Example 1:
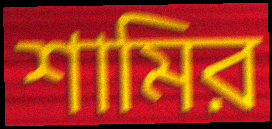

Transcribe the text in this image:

শামির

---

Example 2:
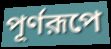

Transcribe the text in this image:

পূর্ণরূপে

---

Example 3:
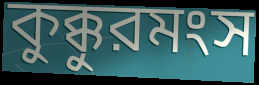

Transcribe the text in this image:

কুক্কুরমংস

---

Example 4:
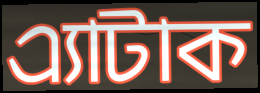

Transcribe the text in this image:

এ্যাটাক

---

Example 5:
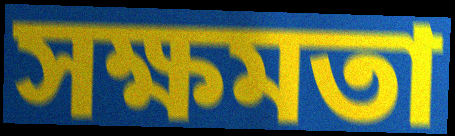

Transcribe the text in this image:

সক্ষমতা